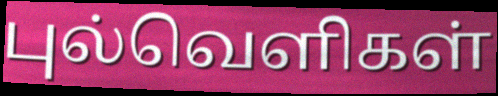
புல்வெளிகள்